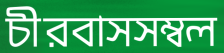
চীরবাসসম্বল